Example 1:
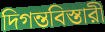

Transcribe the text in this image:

দিগন্তবিস্তারী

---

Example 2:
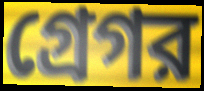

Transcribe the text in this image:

গ্রেগর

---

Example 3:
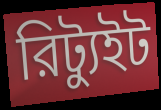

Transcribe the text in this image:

রিট্যুইট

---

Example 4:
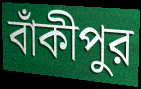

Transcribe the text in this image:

বাঁকীপুর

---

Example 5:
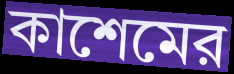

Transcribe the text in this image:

কাশেমের